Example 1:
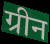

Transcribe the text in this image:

ग्रीन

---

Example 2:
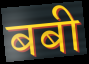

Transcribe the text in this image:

बबी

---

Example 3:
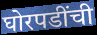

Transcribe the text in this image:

घोरपडींची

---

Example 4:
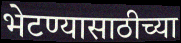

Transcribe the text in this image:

भेटण्यासाठीच्या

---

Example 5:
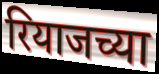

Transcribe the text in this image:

रियाजच्या